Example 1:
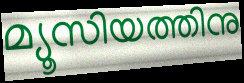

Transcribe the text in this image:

മ്യൂസിയത്തിനു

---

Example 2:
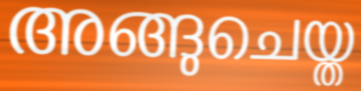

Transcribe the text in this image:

അങ്ങുചെയ്ത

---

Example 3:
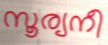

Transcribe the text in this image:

സൂര്യനീ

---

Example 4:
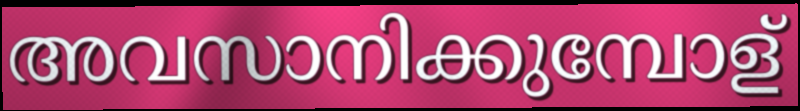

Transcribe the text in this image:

അവസാനിക്കുമ്പോള്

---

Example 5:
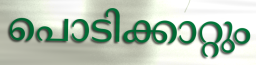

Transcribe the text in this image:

പൊടിക്കാറ്റും